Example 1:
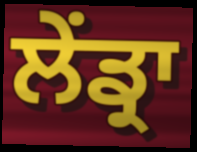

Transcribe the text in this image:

ਲੇਂਡ੍ਰਾ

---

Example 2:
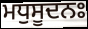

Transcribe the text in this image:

ਮਧੁਸੂਦਨਃ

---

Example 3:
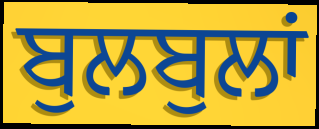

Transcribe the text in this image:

ਬੁਲਬੁਲਾਂ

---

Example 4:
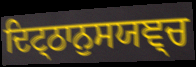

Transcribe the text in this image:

ਦਿਟ੍ਠਾਨੁਸਯਞ੍ਚ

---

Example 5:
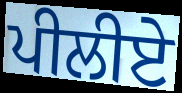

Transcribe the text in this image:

ਪੀਲੀਏ